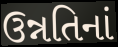
ઉન્નતિનાં